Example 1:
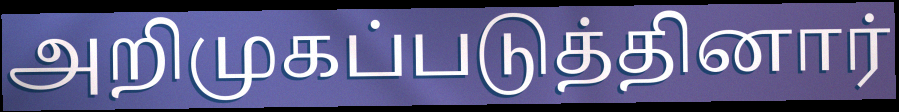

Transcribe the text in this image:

அறிமுகப்படுத்தினார்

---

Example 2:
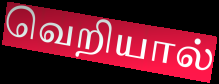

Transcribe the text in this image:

வெறியால்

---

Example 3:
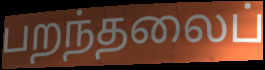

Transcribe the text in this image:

பறந்தலைப்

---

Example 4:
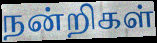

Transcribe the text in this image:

நன்றிகள்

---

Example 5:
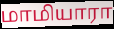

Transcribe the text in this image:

மாமியாரா